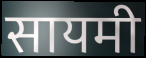
सायमी